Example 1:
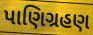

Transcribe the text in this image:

પાણિગ્રહણ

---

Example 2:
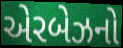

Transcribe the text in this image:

એરબેઝનો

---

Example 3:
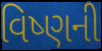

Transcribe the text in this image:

વિષ્ણની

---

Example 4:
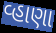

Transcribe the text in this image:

વ્હાણા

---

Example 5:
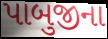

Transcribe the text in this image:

પાબુજીના